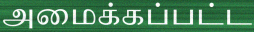
அமைக்கப்பட்ட